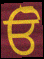
ਓੋ